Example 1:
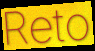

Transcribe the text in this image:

Reto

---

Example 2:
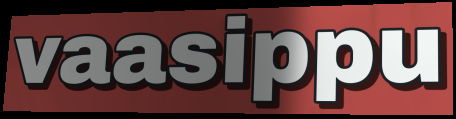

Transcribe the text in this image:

vaasippu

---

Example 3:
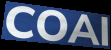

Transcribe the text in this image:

COAI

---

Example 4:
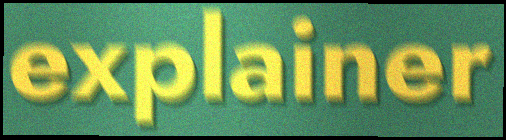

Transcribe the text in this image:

explainer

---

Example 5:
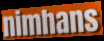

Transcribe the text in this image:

nimhans